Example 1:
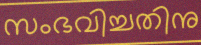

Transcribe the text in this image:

സംഭവിച്ചതിനു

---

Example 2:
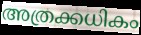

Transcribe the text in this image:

അത്രക്കധികം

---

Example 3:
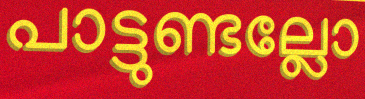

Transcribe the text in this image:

പാട്ടുണ്ടല്ലോ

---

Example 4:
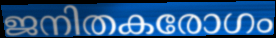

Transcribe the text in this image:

ജനിതകരോഗം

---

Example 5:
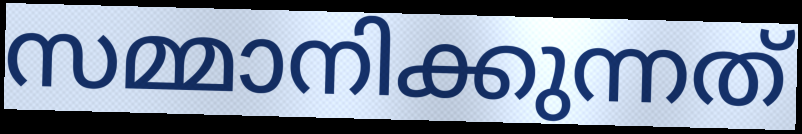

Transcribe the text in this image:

സമ്മാനിക്കുന്നത്